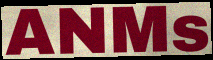
ANMs